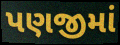
પણજીમાં